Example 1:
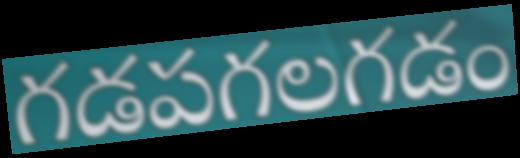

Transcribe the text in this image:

గడపగలగడం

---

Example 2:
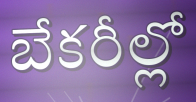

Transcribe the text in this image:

బేకరీల్లో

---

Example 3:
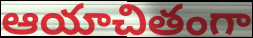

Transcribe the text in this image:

ఆయాచితంగా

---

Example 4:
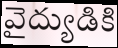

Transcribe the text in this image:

వైద్యుడికి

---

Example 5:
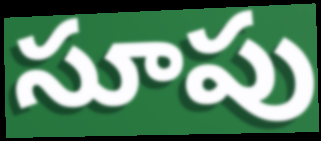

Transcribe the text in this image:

సూపు